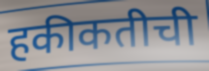
हकीकतीची